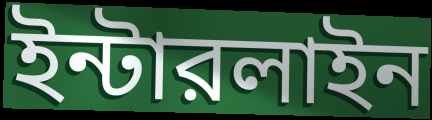
ইন্টারলাইন